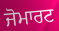
ਜੋਮਾਰਟ